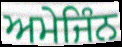
ਅਮੇਜਿੰਨ